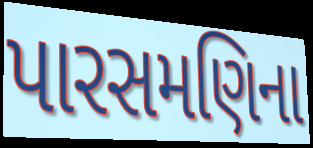
પારસમણિના